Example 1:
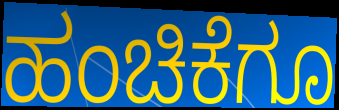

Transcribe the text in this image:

ಹಂಚಿಕೆಗೂ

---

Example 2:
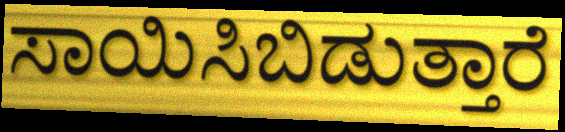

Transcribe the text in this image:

ಸಾಯಿಸಿಬಿಡುತ್ತಾರೆ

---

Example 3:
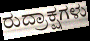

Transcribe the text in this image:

ರುದ್ರಾಕ್ಷಗಳು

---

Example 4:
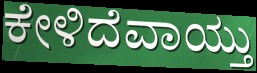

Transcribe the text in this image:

ಕೇಳಿದೆವಾಯ್ತು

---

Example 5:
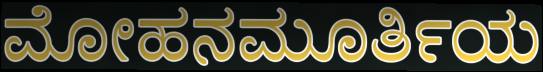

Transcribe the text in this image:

ಮೋಹನಮೂರ್ತಿಯ